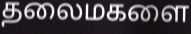
தலைமகளை